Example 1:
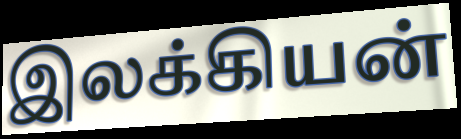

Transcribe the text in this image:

இலக்கியன்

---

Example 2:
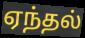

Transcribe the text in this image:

ஏந்தல்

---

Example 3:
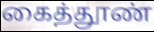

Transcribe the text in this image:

கைத்தூண்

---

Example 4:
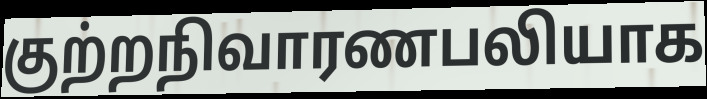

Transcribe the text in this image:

குற்றநிவாரணபலியாக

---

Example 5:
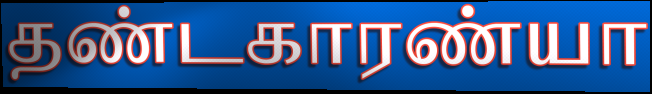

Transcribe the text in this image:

தண்டகாரண்யா